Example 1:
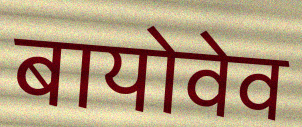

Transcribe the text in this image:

बायोवेव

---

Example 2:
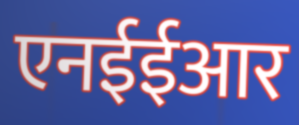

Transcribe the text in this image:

एनईईआर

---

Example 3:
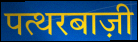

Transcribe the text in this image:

पत्थरबाज़ी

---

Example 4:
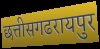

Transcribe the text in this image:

छत्तीसगढरायपुर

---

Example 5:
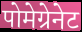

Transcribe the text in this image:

पोमेग्रेनेट